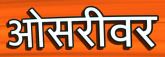
ओसरीवर